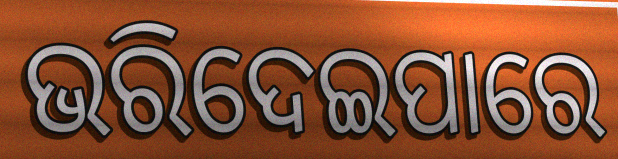
ଭରିଦେଇପାରେ